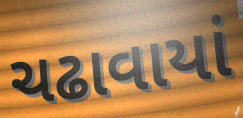
ચઢાવાયાં